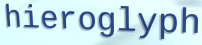
hieroglyph